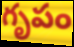
గృపం